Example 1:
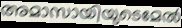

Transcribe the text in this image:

അമാസായിയുടെമേൽ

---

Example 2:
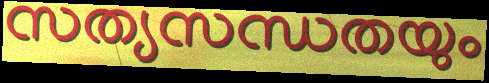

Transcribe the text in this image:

സത്യസന്ധതയും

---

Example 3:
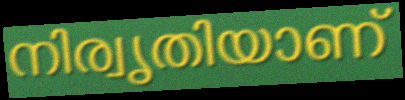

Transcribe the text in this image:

നിര്വൃതിയാണ്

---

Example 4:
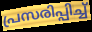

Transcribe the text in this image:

പ്രസരിപ്പിച്ച്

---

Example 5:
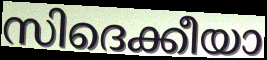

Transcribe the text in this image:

സിദെക്കീയാ